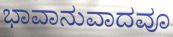
ಭಾವಾನುವಾದವೂ